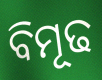
ବିମୂଢ